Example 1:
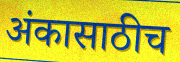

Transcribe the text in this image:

अंकासाठीच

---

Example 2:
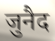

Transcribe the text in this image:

जुनैद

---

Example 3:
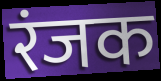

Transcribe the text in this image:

रंजक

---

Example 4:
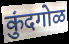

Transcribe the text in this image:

कुंदगोळ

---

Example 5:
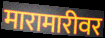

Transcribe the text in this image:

मारामारीवर